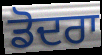
ਡੋਦਰਾ